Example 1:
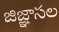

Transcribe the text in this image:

జిజ్ఞాసల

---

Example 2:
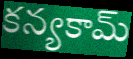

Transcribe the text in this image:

కన్యకామ్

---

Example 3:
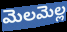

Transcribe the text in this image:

మెలమెల్ల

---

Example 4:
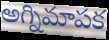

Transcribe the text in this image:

అగ్నిమాపక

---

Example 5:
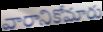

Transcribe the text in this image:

వారానికోమారు